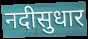
नदीसुधार